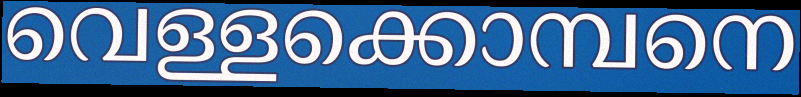
വെള്ളക്കൊമ്പനെ